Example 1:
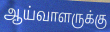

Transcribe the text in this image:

ஆய்வாளருக்கு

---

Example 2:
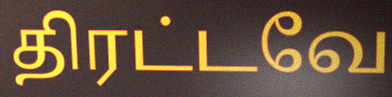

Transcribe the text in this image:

திரட்டவே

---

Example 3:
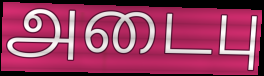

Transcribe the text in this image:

அடைபு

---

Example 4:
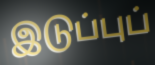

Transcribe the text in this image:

இடுப்புப்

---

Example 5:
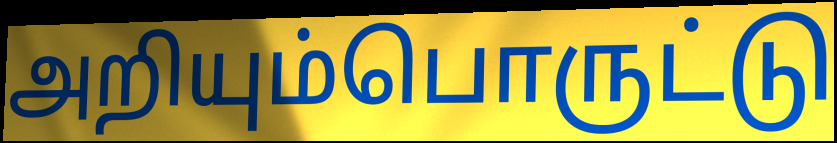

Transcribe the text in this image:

அறியும்பொருட்டு